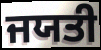
ਜਯਤੀ